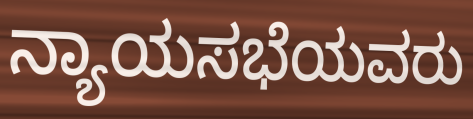
ನ್ಯಾಯಸಭೆಯವರು